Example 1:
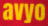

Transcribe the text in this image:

avyo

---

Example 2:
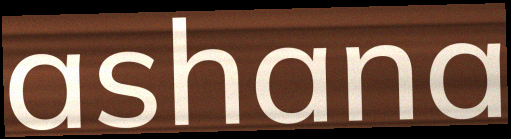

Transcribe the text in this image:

ashana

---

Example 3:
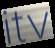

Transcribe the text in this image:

itv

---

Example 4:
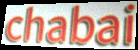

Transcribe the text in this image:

chabai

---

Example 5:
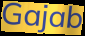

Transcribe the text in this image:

Gajab